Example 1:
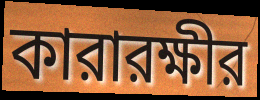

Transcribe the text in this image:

কারারক্ষীর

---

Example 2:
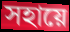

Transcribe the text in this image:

সহায়ে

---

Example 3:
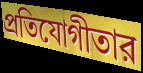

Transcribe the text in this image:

প্রতিযোগীতার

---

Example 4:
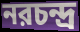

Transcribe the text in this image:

নরচন্দ্র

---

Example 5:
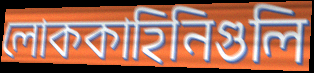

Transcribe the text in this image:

লোককাহিনিগুলি